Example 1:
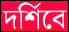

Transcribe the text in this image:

দর্শিবে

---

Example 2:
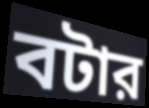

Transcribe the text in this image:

বটার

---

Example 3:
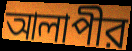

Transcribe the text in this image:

আলাপীর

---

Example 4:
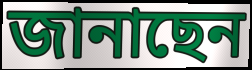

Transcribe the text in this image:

জানাছেন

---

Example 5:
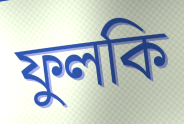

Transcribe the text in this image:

ফুলকি